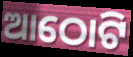
ଆଠୋଟି